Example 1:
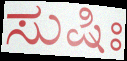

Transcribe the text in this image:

ಸುಷಿಃ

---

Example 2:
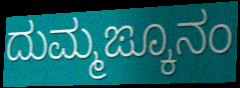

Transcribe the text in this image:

ದುಮ್ಮಙ್ಕೂನಂ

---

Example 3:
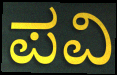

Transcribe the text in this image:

ಪವಿ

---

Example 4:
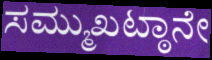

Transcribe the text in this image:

ಸಮ್ಮುಖಟ್ಠಾನೇ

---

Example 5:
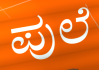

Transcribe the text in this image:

ಪುಲೆ